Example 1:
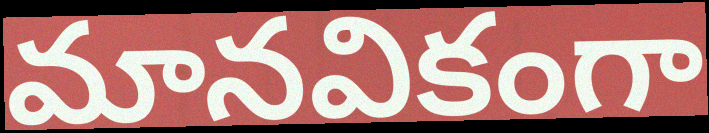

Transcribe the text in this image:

మానవికంగా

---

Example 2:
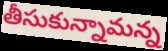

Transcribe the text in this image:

తీసుకున్నామన్న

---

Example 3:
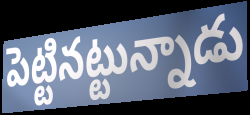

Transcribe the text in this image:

పెట్టినట్టున్నాడు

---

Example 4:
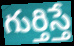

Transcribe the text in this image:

గుర్తిస్తే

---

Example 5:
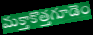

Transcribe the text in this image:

మక్తాకొత్తగూడెం